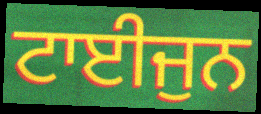
ਟਾਈਜੁਨ